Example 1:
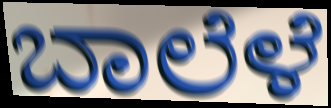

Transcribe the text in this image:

ಬಾಲೆಳೆ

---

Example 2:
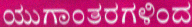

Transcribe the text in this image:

ಯುಗಾಂತರಗಳಿಂದ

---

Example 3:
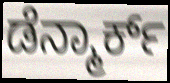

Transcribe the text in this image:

ಡೆನ್ಮಾರ್ಕ್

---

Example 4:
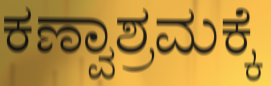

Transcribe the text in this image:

ಕಣ್ವಾಶ್ರಮಕ್ಕೆ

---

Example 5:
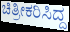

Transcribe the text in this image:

ಚಿತ್ರೀಕರಿಸಿದ್ದ